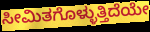
ಸೀಮಿತಗೊಳ್ಳುತ್ತಿದೆಯೇ